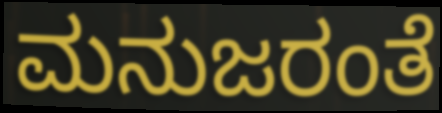
ಮನುಜರಂತೆ